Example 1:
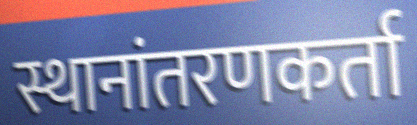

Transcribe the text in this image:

स्थानांतरणकर्ता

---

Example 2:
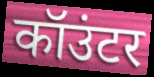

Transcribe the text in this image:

कॉउंटर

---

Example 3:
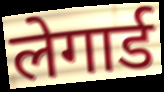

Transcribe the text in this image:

लेगार्ड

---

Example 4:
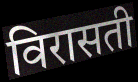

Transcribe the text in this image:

विरासती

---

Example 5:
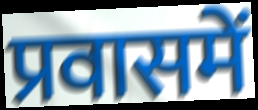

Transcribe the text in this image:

प्रवासमें